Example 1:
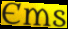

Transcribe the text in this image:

Ems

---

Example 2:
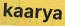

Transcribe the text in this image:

kaarya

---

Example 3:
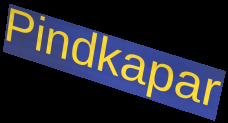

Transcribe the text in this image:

Pindkapar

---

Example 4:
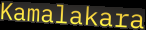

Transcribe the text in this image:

Kamalakara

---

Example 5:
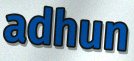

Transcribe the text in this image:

adhun